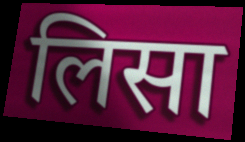
लिसा